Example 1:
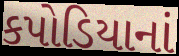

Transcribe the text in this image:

કપોડિયાનાં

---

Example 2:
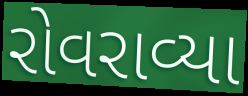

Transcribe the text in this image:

રોવરાવ્યા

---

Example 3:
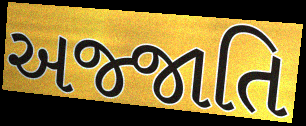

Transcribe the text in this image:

અજ્જાતિ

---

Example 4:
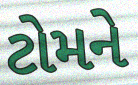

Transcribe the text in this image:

ટોમને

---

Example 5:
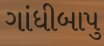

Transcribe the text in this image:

ગાંધીબાપુ